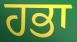
ਹਭਾ